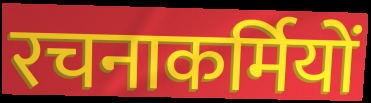
रचनाकर्मियों